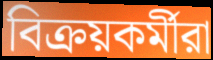
বিক্রয়কর্মীরা